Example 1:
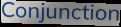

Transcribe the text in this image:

Conjunction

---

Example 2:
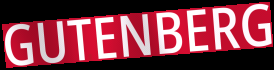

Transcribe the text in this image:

GUTENBERG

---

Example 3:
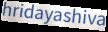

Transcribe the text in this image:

hridayashiva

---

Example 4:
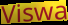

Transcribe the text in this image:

Viswa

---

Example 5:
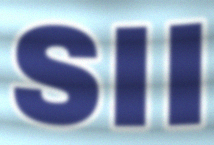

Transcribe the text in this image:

SII